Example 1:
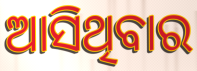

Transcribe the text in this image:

ଆସିଥିବାର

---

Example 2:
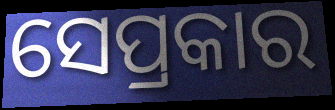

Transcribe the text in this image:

ସେପ୍ରକାର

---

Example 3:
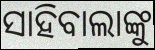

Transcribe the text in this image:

ସାହିବାଲାଙ୍କୁ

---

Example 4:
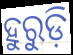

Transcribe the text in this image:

ହୁରୁଡ଼ି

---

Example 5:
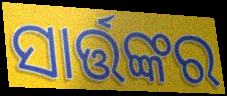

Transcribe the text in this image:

ସାର୍ତ୍ତଙ୍କର